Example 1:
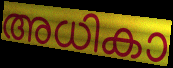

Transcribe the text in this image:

അധികാ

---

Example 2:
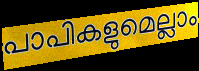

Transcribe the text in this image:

പാപികളുമെല്ലാം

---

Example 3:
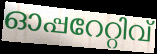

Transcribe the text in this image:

ഓപ്പറേറ്റിവ്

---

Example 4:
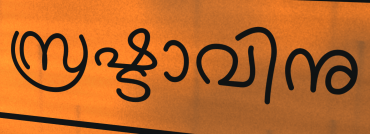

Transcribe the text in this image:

സ്രഷ്ടാവിനു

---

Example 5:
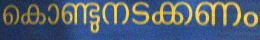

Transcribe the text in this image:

കൊണ്ടുനടക്കണം